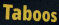
Taboos